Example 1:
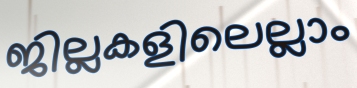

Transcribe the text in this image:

ജില്ലകളിലെല്ലാം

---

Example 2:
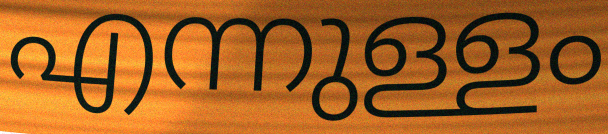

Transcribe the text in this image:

എന്നുള്ളം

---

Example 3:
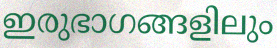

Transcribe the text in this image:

ഇരുഭാഗങ്ങളിലും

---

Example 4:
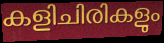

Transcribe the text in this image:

കളിചിരികളും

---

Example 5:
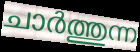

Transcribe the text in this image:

ചാർത്തുന്ന